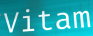
Vitam